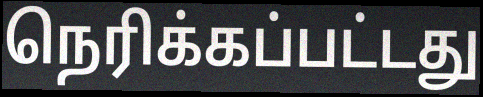
நெரிக்கப்பட்டது